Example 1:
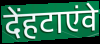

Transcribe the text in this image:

देंहटाएंवे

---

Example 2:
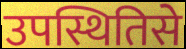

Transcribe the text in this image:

उपस्थितिसे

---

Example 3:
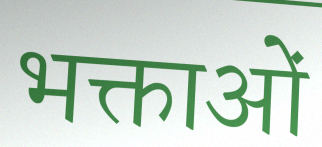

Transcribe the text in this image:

भक्ताओं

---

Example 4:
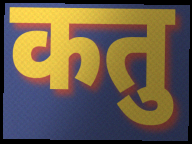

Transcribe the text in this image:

कतु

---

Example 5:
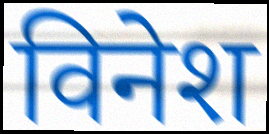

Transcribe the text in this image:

विनेश